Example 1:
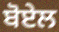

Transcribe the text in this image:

ਬੋਏਲ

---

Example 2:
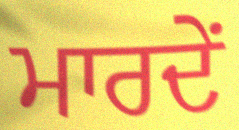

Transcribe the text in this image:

ਮਾਰਦੇਂ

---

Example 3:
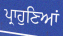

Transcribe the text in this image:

ਪ੍ਰਾਹੁਣਿਆਂ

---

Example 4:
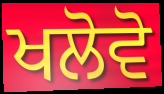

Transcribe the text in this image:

ਖਲੋਵੋ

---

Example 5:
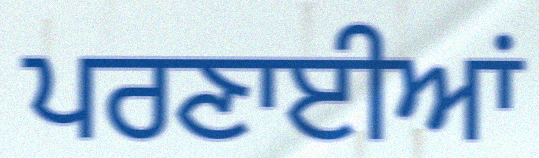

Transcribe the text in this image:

ਪਰਣਾਈਆਂ